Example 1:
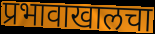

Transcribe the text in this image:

प्रभावाखालचा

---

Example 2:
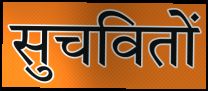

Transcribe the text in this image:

सुचवितों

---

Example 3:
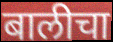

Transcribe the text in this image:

बालीचा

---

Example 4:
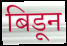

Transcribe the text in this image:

बिडून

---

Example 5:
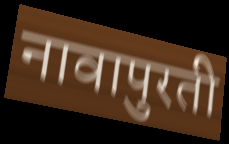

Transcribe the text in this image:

नावापुरती